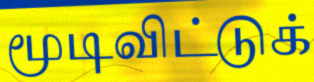
மூடிவிட்டுக்